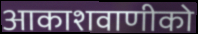
आकाशवाणीको